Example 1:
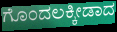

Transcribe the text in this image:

ಗೊಂದಲಕ್ಕೀಡಾದ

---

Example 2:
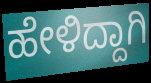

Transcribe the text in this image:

ಹೇಳಿದ್ದಾಗಿ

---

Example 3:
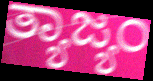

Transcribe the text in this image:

ತ್ಯಾಜ್ಯಂ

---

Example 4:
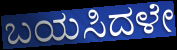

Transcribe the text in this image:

ಬಯಸಿದಳೇ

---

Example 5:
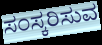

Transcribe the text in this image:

ಸಂಸ್ಕರಿಸುವ